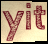
yit